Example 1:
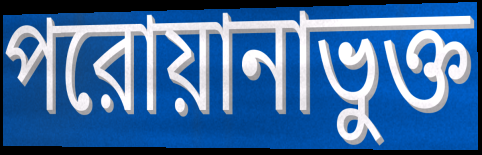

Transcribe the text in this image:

পরোয়ানাভুক্ত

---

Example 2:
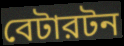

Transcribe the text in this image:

বেটারটন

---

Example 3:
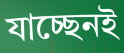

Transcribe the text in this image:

যাচ্ছেনই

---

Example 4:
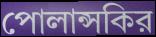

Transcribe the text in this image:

পোলান্সকির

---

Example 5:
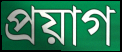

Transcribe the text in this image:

প্রয়াগ